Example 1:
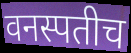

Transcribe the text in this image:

वनस्पतीच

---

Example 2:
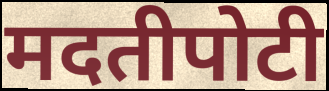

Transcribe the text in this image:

मदतीपोटी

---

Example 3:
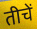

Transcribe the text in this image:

तीचें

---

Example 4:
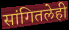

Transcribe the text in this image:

सांगितलेही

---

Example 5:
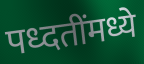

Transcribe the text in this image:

पध्दतींमध्ये